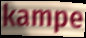
kampe